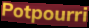
Potpourri